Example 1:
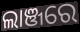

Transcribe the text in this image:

ଲାଞ୍ଜରେ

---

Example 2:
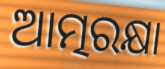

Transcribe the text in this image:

ଆତ୍ମରକ୍ଷା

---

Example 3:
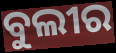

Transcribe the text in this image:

ବୁଲୀର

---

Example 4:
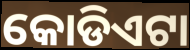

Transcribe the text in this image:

କୋଡିଏଟା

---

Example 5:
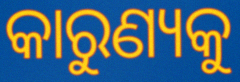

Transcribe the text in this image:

କାରୁଣ୍ୟକୁ